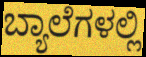
ಬ್ಯಾಲೆಗಳಲ್ಲಿ